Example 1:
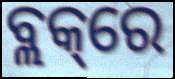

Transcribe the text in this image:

ବ୍ଲକ୍‌ରେ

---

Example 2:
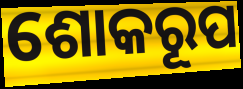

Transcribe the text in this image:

ଶୋକରୂପ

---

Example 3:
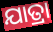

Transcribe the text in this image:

ଯାତ୍ରା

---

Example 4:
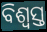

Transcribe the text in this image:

ବିଶ୍ୱସ୍ତ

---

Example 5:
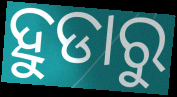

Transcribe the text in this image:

ହୁଡାରୁ